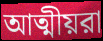
আত্মীয়রা